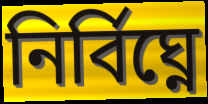
নির্বিঘ্নে